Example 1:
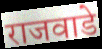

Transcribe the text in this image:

राजवाडे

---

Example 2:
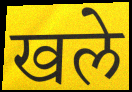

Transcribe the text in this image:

खले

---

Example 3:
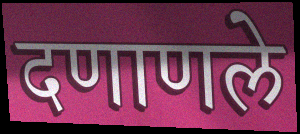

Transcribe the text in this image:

दणाणले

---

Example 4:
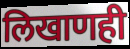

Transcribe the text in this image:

लिखाणही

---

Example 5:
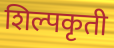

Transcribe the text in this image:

शिल्पकृती